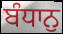
ਬੰਧਾਨੁ